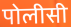
पोलीसी